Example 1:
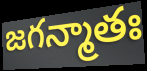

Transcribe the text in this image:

జగన్మాతః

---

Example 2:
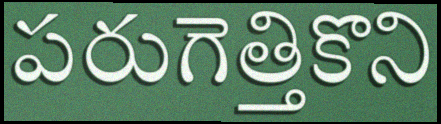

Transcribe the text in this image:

పరుగెత్తికొని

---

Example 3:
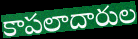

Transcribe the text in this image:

కాపలాదారుల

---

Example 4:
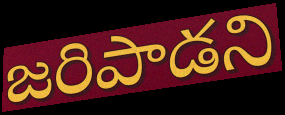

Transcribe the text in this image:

జరిపాడని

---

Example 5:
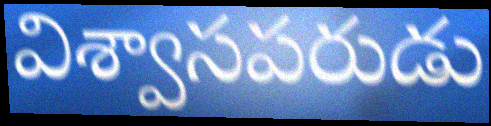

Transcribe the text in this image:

విశ్వాసపరుడు